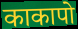
काकापो